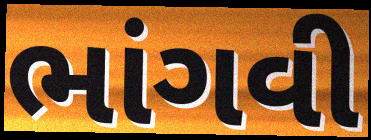
ભાંગવી